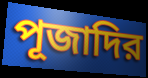
পূজাদির